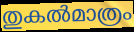
തുകൽമാത്രം